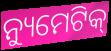
ନ୍ୟୁମେଟିକ୍